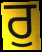
ਰੁ